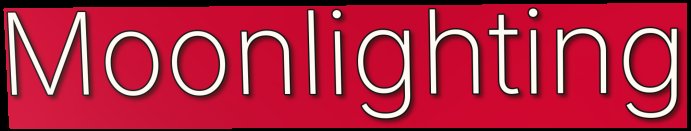
Moonlighting